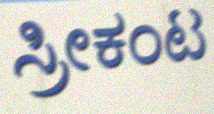
ಸ್ರೀಕಂಟ